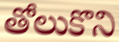
తోలుకొని